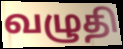
வழுதி